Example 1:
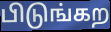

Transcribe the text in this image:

பிடுங்கற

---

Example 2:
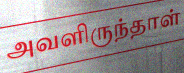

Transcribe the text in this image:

அவளிருந்தாள்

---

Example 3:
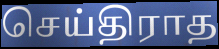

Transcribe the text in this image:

செய்திராத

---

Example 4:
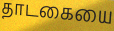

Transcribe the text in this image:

தாடகையை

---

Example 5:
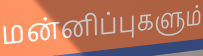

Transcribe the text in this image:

மன்னிப்புகளும்